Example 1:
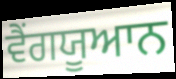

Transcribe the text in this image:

ਵੈਂਗਯੂਆਨ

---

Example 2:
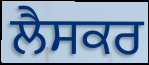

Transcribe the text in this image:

ਲੈਸਕਰ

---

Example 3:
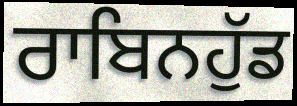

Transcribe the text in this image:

ਰਾਬਿਨਹੁੱਡ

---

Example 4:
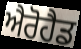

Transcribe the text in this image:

ਐਰੋਹੈਡ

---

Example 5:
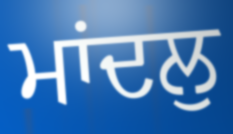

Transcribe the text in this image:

ਮਾਂਦਲੁ